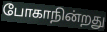
போகாநின்றது